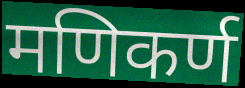
मणिकर्ण